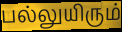
பல்லுயிரும்